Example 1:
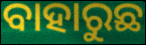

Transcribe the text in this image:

ବାହାରୁଛ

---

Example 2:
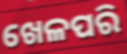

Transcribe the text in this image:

ଖେଳପରି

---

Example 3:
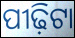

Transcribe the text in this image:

ପୀଢ଼ିଟା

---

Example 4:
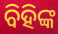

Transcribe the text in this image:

ବିହିଙ୍କ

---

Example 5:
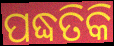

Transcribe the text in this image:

ପଦ୍ଧତିକି